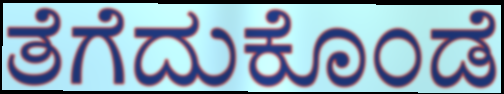
ತೆಗೆದುಕೊಂಡೆ